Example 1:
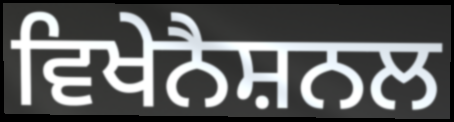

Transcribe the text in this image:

ਵਿਖੇਨੈਸ਼ਨਲ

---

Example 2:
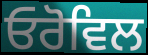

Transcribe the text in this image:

ਓਰੋਵਿਲ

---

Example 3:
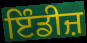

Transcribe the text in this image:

ਇੰਡੀਜ਼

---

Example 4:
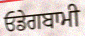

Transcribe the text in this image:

ਓਡੇਗਬਾਮੀ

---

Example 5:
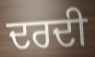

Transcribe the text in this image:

ਦਰਦੀ